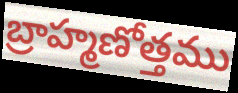
బ్రాహ్మణోత్తము